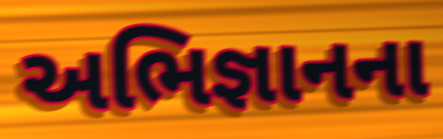
અભિજ્ઞાનના